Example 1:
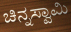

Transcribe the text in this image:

ಚಿನ್ನಸ್ವಾಮಿ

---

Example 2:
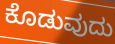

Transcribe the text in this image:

ಕೊಡುವುದು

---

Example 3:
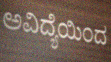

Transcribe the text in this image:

ಅವಿದ್ಯೆಯಿಂದ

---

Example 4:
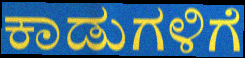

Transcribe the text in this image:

ಕಾಡುಗಳಿಗೆ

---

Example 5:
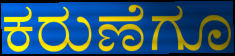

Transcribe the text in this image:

ಕರುಣೆಗೂ